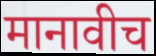
मानावीच